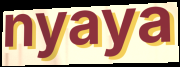
nyaya